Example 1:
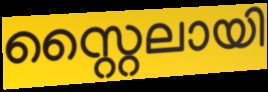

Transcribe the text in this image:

സ്റ്റൈലായി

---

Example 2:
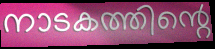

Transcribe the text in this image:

നാടകത്തിന്റെ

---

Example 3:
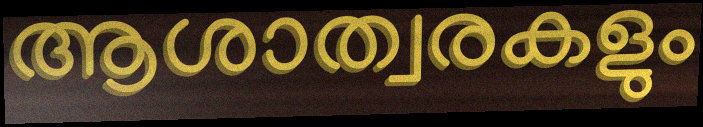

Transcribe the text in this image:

ആശാത്വരകളും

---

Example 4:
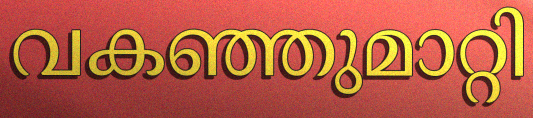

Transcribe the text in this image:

വകഞ്ഞുമാറ്റി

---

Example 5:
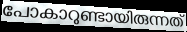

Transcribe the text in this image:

പോകാറുണ്ടായിരുന്നത്